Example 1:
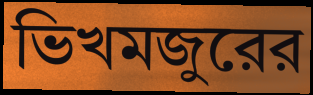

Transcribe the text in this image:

ভিখমজুরের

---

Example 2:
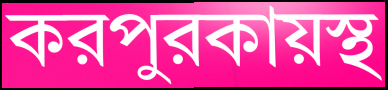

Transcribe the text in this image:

করপুরকায়স্থ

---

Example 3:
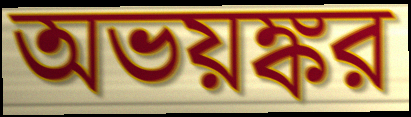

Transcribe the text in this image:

অভয়ঙ্কর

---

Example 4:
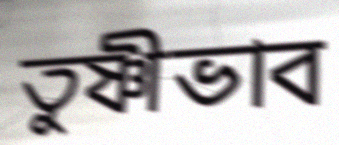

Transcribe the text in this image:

তুষ্ণীভাব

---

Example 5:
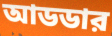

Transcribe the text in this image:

আডডার